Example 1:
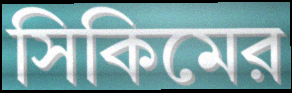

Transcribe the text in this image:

সিকিমের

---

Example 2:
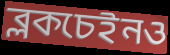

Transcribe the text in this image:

ব্লকচেইনও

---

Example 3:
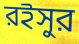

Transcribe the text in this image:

রইসুর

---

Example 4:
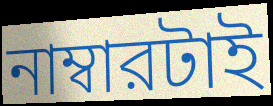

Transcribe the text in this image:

নাম্বারটাই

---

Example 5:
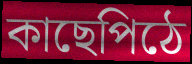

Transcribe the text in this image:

কাছেপিঠে